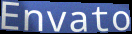
Envato